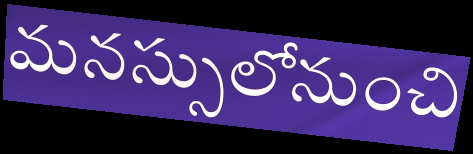
మనస్సులోనుంచి